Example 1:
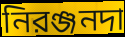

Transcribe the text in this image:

নিরঞ্জনদা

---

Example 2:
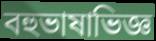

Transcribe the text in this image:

বহুভাষাভিজ্ঞ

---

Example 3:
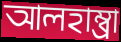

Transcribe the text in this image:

আলহাম্ব্রা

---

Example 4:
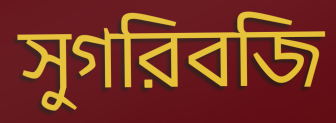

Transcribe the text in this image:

সুগরিবজি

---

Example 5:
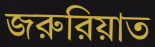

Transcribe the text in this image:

জরুরিয়াত